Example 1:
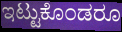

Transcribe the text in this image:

ಇಟ್ಟುಕೊಂಡರೂ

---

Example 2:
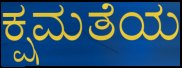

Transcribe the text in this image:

ಕ್ಷಮತೆಯ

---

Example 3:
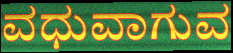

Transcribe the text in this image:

ವಧುವಾಗುವ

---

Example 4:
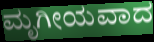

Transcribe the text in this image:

ಮೃಗೀಯವಾದ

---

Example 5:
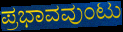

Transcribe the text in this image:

ಪ್ರಭಾವವುಂಟು